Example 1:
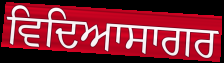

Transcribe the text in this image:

ਵਿਦਿਆਸਾਗਰ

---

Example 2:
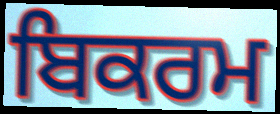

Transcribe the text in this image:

ਬਿਕਰਮ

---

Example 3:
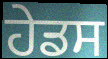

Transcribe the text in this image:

ਹੇਡਸ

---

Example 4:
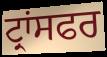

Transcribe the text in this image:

ਟ੍ਰਾਂਸਫਰ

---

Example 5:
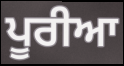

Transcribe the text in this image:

ਪੂਰੀਆ